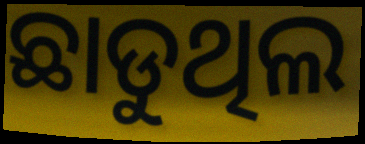
ଛାଡୁଥିଲ